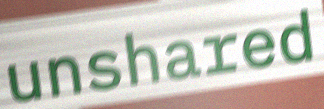
unshared